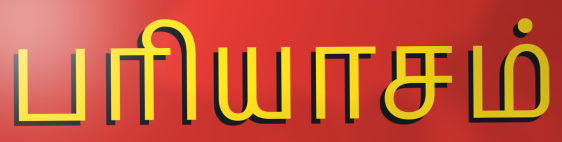
பரியாசம்